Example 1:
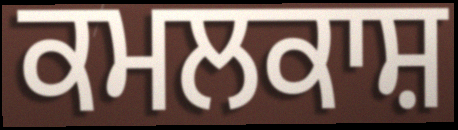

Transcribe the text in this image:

ਕਮਲਕਾਸ਼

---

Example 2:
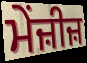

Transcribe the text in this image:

ਮੇਂਜ਼ੀਜ਼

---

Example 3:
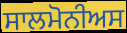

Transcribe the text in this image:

ਸਾਲਮੋਨੀਅਸ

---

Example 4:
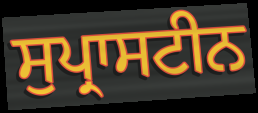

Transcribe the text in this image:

ਸੁਪ੍ਰਾਸਟੀਨ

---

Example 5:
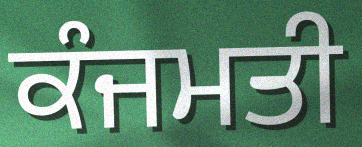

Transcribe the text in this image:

ਕੰਜਮਤੀ